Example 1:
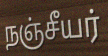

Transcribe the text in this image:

நஞ்சீயர்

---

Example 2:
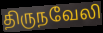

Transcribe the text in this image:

திருநவேலி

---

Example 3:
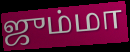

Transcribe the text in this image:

ஜும்மா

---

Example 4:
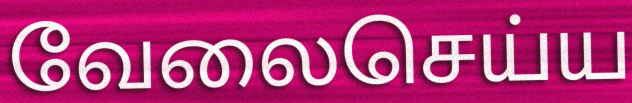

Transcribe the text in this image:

வேலைசெய்ய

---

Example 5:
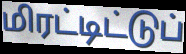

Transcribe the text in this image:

மிரட்டிட்டுப்